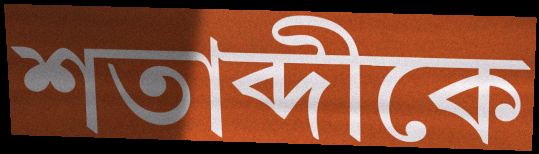
শতাব্দীকে